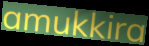
amukkira